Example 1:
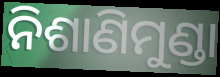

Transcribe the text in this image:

ନିଶାଣିମୁଣ୍ଡା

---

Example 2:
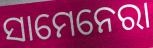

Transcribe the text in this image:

ସାମେନେରା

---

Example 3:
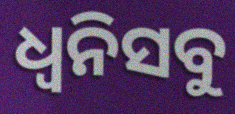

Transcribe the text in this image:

ଧ୍ୱନିସବୁ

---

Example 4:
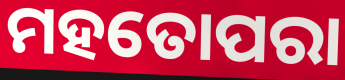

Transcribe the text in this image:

ମହତୋପରା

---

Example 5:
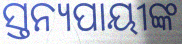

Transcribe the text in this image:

ସ୍ତନ୍ୟପାୟୀଙ୍କ